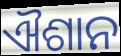
ଐଶାନ